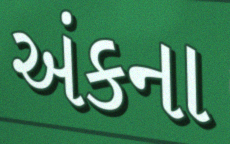
અંકના